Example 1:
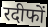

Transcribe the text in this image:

रदीफों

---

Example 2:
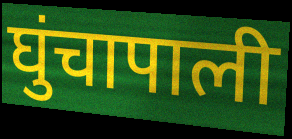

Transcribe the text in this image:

घुंचापाली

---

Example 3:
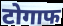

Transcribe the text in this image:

टोगाफ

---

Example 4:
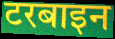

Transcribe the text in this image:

टरबाइन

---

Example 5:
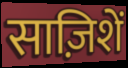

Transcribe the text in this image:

साज़िशें